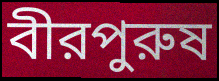
বীরপুরুষ